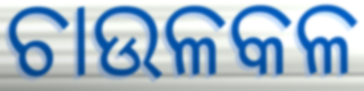
ଚାଉଳକଳ